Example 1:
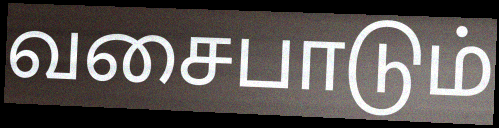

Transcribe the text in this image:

வசைபாடும்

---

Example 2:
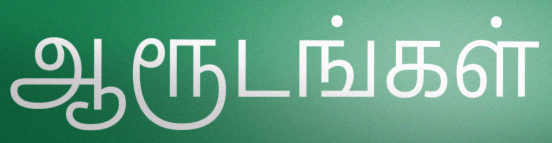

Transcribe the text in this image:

ஆரூடங்கள்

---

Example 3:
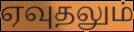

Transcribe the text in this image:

ஏவுதலும்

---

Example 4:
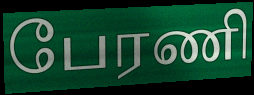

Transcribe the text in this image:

பேரணி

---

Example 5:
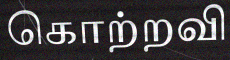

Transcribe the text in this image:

கொற்றவி